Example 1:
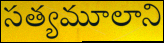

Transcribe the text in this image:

సత్యమూలాని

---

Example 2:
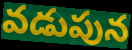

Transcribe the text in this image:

వడుపున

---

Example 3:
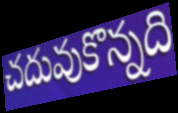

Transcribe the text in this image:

చదువుకొన్నది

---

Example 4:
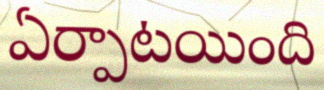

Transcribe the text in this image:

ఏర్పాటయింది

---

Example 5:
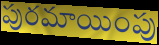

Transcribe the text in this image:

పురమాయింపు